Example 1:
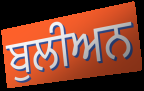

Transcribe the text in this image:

ਬੁਲੀਅਨ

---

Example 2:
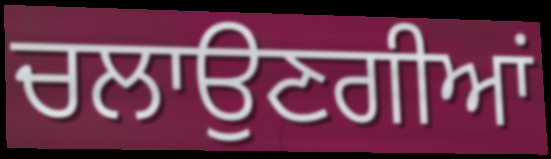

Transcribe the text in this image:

ਚਲਾਉਣਗੀਆਂ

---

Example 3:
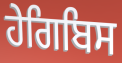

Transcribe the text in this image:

ਹੇਗਿਬਿਸ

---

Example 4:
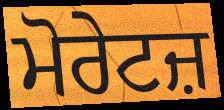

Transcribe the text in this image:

ਮੋਰੇਟਜ਼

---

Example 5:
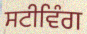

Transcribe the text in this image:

ਸਟੀਵਿੰਗ